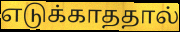
எடுக்காததால்